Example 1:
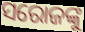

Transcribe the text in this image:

ସରୋଜଙ୍କୁ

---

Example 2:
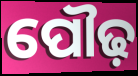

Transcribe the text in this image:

ପୌଢ଼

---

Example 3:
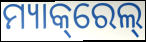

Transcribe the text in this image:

ମ୍ୟାକ୍‌ରେଲ୍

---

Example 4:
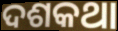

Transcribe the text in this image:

ଦଶକଥା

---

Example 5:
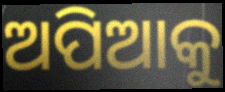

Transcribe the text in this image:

ଅପିଆକୁ